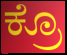
ಕ್ರೊ